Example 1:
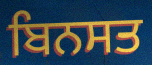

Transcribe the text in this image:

ਬਿਨਸਤ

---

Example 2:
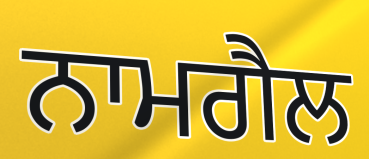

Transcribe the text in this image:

ਨਾਮਗੈਲ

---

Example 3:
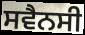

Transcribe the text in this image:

ਸਵੈਨਸੀ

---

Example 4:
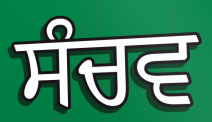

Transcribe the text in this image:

ਸੰਚਵ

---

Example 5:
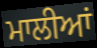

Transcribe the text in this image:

ਮਾਲੀਆਂ